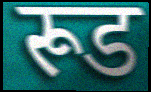
रूड